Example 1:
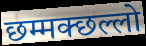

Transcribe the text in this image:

छम्मक्छल्लो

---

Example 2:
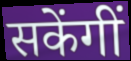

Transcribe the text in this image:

सकेंगीं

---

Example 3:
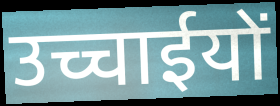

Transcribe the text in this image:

उच्चाईयों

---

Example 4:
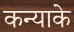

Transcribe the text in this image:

कन्याके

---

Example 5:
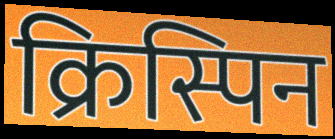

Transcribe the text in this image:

क्रिस्पिन